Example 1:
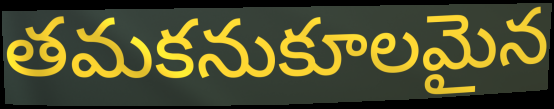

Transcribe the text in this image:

తమకనుకూలమైన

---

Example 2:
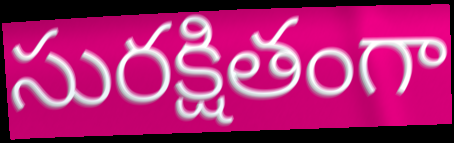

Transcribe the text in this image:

సురక్షితంగా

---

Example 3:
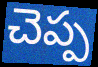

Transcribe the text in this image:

చెప్ప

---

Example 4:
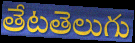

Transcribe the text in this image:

తేటతెలుగు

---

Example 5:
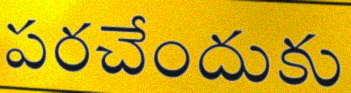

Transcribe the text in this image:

పరచేందుకు